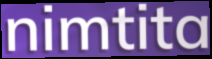
nimtita